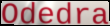
Odedra